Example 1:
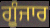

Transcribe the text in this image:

ਗੂੰਜਾਰ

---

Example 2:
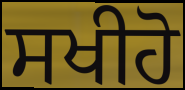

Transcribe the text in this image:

ਸਖੀਹੋ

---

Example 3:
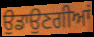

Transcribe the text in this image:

ਉਡਾਉਣਗੀਆਂ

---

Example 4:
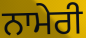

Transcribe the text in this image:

ਨਾਮੇਰੀ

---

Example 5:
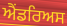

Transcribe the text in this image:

ਐਂਡਰਿਅਸ